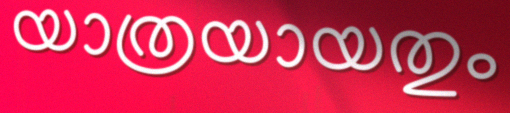
യാത്രയായതും